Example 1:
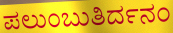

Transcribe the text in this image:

ಪಲುಂಬುತಿರ್ದನಂ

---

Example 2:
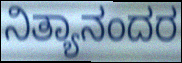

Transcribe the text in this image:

ನಿತ್ಯಾನಂದರ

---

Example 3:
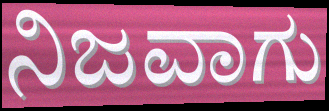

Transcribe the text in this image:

ನಿಜವಾಗು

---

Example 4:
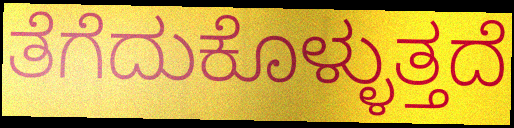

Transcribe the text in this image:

ತೆಗೆದುಕೊಳ್ಳುತ್ತದೆ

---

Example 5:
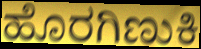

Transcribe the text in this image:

ಹೊರಗಿಣುಕಿ